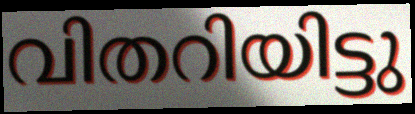
വിതറിയിട്ടു